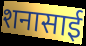
शनासाई